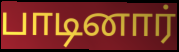
பாடினார்